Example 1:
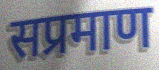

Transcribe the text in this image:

सप्रमाण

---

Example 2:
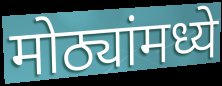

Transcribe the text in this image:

मोठ्यांमध्ये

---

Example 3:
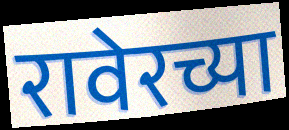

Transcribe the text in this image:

रावेरच्या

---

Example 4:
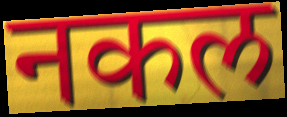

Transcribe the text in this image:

नकल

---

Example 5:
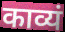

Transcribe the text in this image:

काव्यं